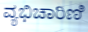
ವ್ಯಭಿಚಾರಿಣಿ